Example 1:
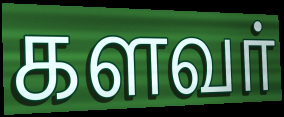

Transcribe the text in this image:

களவர்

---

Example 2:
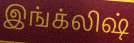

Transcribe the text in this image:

இங்க்லிஷ்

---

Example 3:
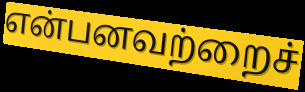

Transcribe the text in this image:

என்பனவற்றைச்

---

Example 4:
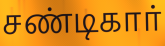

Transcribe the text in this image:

சண்டிகார்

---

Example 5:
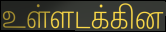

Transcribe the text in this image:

உள்ளடக்கின